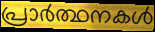
പ്രാർത്ഥനകൾ